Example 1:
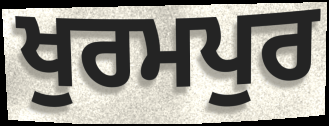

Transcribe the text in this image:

ਖੁਰਮਪੁਰ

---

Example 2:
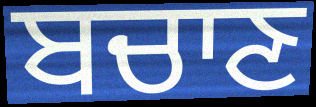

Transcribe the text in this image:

ਬਚਾਣ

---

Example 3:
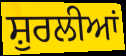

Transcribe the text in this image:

ਸ਼ੁਰਲੀਆਂ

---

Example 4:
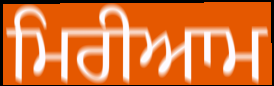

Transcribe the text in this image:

ਮਿਰੀਆਮ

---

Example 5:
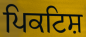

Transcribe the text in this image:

ਪਿਕਟਿਸ਼